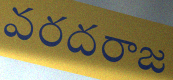
వరదరాజ